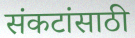
संकटांसाठी